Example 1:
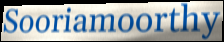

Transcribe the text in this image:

Sooriamoorthy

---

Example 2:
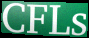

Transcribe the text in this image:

CFLs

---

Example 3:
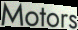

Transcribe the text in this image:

Motors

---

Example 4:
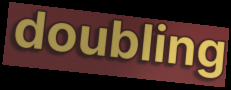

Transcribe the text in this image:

doubling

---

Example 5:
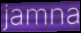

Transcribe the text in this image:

jamna